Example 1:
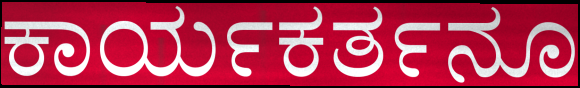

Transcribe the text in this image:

ಕಾರ್ಯಕರ್ತನೂ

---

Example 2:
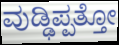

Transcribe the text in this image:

ವುಡ್ಢಿಪ್ಪತ್ತೋ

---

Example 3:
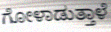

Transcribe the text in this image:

ಗೋಳಾಡುತ್ತಾಳೆ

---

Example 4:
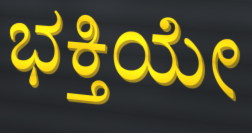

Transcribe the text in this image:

ಭಕ್ತಿಯೇ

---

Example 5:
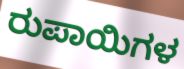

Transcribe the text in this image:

ರುಪಾಯಿಗಳ